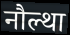
नौल्था